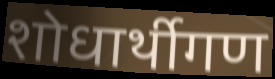
शोधार्थीगण